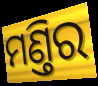
ମଣ୍ତିର